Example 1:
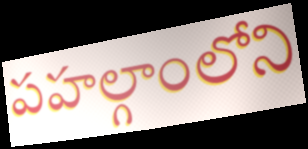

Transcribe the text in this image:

పహల్గాంలోని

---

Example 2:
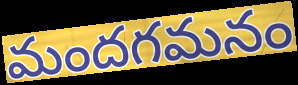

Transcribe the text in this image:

మందగమనం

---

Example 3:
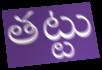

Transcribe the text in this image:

తట్టు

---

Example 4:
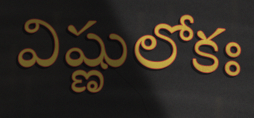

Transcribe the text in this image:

విష్ణులోకః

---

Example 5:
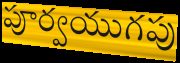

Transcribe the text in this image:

పూర్వయుగపు